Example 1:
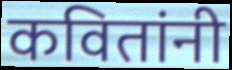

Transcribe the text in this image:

कवितांनी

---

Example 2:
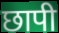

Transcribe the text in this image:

छापी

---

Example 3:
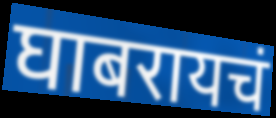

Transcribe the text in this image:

घाबरायचं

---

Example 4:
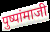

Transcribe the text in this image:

पुष्पांमाजी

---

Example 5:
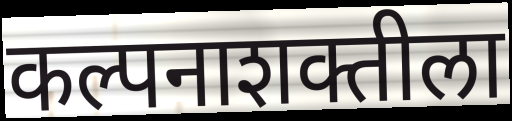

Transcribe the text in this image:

कल्पनाशक्तीला